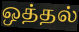
ஒத்தல்